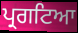
ਪ੍ਰਗਟਿਆ